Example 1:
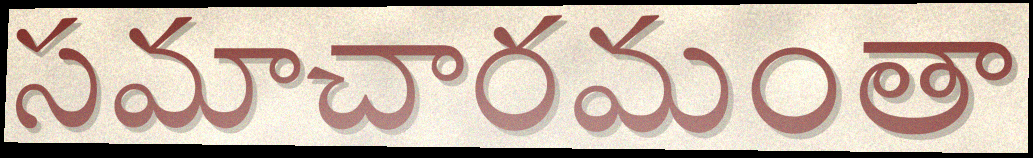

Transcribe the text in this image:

సమాచారమంతా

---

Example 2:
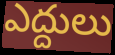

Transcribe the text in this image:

ఎద్దులు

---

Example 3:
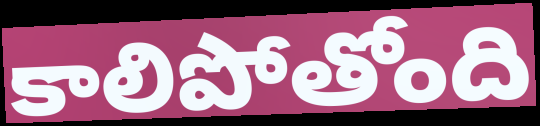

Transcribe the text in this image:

కాలిపోతోంది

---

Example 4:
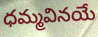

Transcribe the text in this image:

ధమ్మవినయే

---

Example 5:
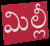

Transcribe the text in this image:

మిల్లీ